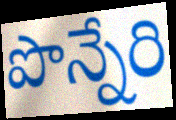
పొన్నేరి